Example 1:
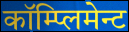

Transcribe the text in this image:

कॉम्प्लिमेन्ट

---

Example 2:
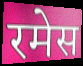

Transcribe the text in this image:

रमेस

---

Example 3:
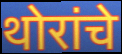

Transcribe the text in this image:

थोरांचे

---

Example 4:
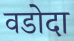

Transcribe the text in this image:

वडोदा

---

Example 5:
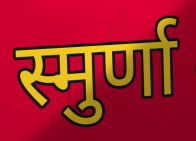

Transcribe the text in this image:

स्मुर्णा